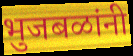
भुजबळांनी